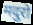
मदुरो